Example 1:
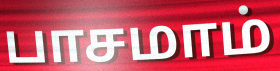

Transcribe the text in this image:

பாசமாம்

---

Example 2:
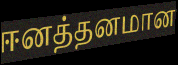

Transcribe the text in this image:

ஈனத்தனமான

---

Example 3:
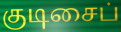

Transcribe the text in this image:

குடிசைப்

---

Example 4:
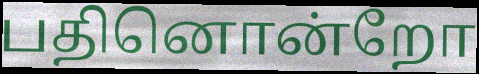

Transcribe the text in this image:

பதினொன்றோ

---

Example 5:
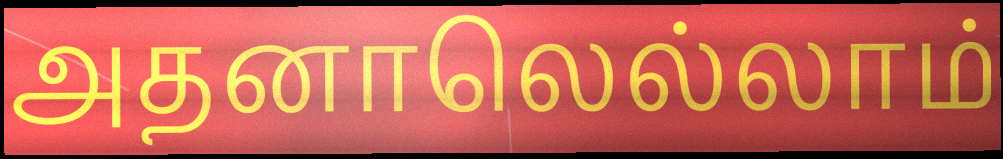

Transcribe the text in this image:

அதனாலெல்லாம்